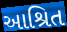
આશ્રિત